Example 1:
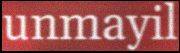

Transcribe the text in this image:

unmayil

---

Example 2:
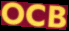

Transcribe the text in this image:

OCB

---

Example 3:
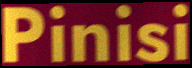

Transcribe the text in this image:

Pinisi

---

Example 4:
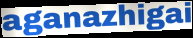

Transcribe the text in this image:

aganazhigai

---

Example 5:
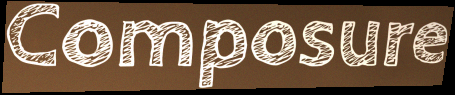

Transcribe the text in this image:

Composure